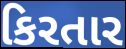
કિરતાર